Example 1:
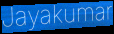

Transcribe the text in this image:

Jayakumar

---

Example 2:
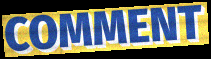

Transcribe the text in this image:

COMMENT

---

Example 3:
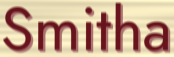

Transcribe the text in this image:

Smitha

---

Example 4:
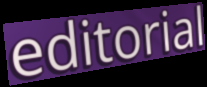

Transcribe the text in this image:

editorial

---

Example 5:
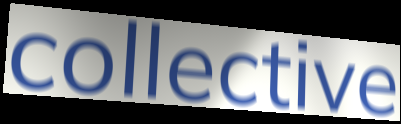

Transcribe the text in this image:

collective